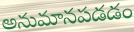
అనుమానపడడం